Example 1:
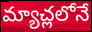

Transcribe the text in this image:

మ్యాచ్లలోనే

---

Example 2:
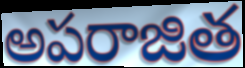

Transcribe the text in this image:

అపరాజిత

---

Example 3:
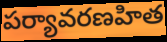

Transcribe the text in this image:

పర్యావరణహిత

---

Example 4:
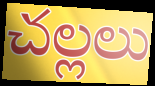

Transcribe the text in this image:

చల్లలు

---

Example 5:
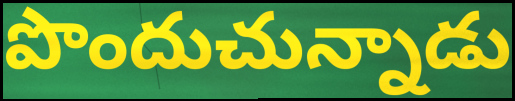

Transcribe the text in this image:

పొందుచున్నాడు